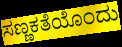
ಸಣ್ಣಕತೆಯೊಂದು